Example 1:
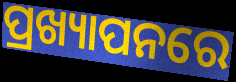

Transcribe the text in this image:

ପ୍ରଖ୍ୟାପନରେ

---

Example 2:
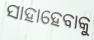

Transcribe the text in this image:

ସାହାହେବାକୁ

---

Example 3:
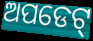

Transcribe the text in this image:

ଅପଡେଟ୍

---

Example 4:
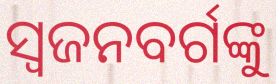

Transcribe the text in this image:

ସ୍ଵଜନବର୍ଗଙ୍କୁ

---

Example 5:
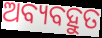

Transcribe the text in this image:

ଅବ୍ୟବହୁତ